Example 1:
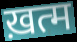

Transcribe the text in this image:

ख़त्‍म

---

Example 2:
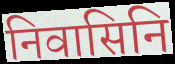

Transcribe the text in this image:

निवासिनि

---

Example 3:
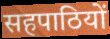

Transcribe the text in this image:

सहपाठियों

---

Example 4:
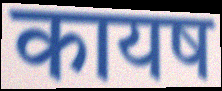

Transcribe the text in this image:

कायष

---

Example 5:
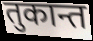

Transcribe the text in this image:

तुकान्त